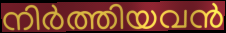
നിർത്തിയവൻ